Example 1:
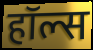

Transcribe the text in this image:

हॉल्स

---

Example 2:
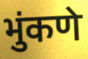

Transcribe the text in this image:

भुंकणे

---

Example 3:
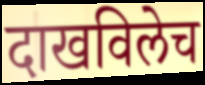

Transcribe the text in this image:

दाखविलेच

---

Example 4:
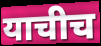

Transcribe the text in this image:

याचीच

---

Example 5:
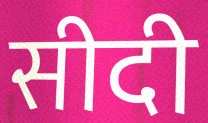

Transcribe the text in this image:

सीदी